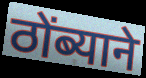
ठोंब्याने